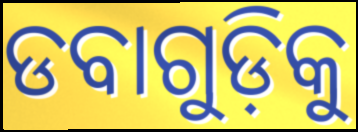
ଡବାଗୁଡ଼ିକୁ